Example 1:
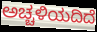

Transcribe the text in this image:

ಅಚ್ಚಳಿಯದಿದೆ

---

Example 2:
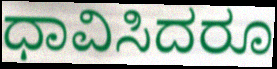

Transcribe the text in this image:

ಧಾವಿಸಿದರೂ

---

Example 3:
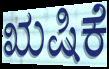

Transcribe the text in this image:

ಋಷಿಕೆ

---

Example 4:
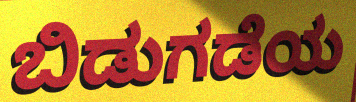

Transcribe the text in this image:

ಬಿಡುಗಡೆಯ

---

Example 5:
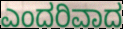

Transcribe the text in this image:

ಎಂದರಿವಾದ